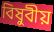
বিষুবীয়